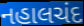
નહાલચંદ